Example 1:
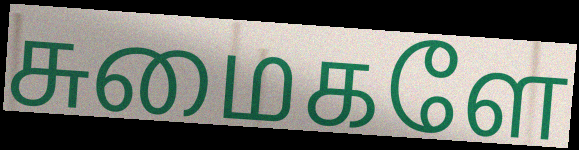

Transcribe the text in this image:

சுமைகளே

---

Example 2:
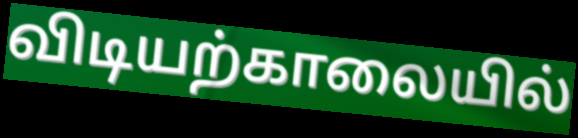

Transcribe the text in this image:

விடியற்காலையில்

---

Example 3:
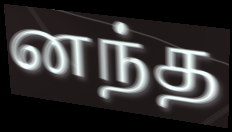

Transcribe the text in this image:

னந்த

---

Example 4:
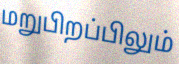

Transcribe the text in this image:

மறுபிறப்பிலும்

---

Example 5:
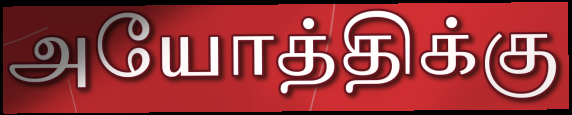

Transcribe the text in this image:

அயோத்திக்கு